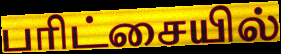
பரிட்சையில்